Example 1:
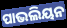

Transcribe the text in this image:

ପାଭଲିୟନ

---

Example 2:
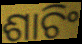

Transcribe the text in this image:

ଶାଚିଂ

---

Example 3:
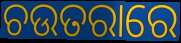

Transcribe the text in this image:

ଚଉତରାରେ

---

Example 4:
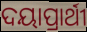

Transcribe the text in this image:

ଦୟାପ୍ରାର୍ଥୀ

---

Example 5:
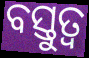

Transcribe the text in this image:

ବସ୍ତୁତ୍ବ